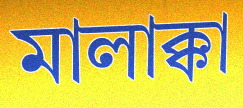
মালাক্কা